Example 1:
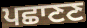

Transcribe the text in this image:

ਪਛਾਣਣ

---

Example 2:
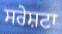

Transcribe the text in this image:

ਸਰੇਸ਼ਟਾ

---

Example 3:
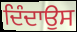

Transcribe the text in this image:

ਦਿੰਦਾਉਸ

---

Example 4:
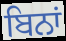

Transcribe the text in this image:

ਬਿਨਾਂ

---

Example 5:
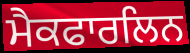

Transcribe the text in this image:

ਮੈਕਫਾਰਲਿਨ